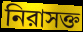
নিরাসক্ত